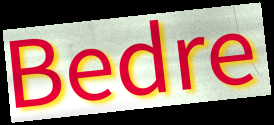
Bedre